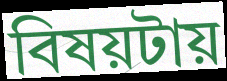
বিষয়টায়